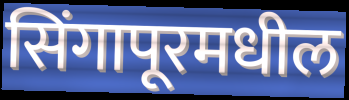
सिंगापूरमधील